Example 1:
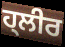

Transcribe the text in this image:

ਹ੍ਲੀਰ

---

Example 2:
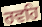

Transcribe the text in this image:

ਰਵਹਿ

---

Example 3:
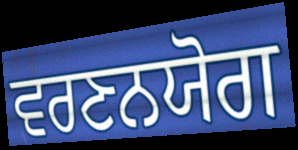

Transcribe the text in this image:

ਵਰਣਨਯੋਗ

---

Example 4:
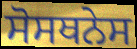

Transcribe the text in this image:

ਸੋਸਥਨੇਸ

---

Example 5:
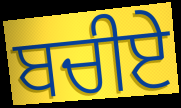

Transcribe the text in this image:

ਬਚੀਏ